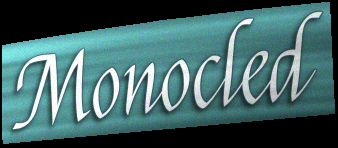
Monocled